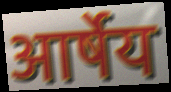
आर्षेय